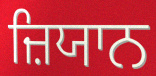
ਜ਼ਿਯਾਨ